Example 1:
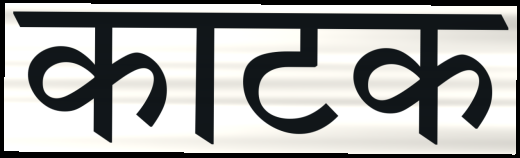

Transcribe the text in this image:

काटक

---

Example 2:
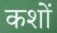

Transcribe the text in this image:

कशों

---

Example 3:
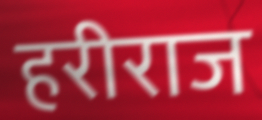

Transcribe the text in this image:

हरीराज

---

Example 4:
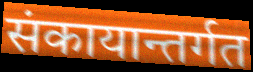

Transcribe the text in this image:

संकायान्तर्गत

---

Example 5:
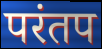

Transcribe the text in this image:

परंतप